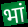
भां